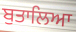
ਬੁਤਾਲਿਆ